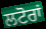
ਲਟੋਰਾਂ